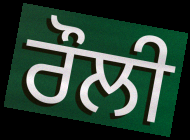
ਰੌਲੀ